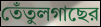
তেঁতুলগাছের